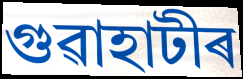
গুৱাহাটীৰ